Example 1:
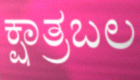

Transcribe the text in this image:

ಕ್ಷಾತ್ರಬಲ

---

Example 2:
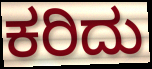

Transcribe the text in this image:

ಕರಿದು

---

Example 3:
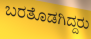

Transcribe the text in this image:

ಬರತೊಡಗಿದ್ದರು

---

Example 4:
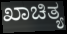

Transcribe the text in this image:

ಖಾಚಿತ್ಯ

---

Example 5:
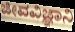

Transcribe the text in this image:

ಜೀವವಿಜ್ಞಾನಿ